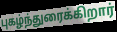
புகழ்ந்துரைக்கிறார்